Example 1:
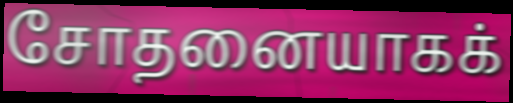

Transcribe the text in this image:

சோதனையாகக்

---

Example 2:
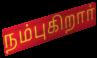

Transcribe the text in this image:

நம்புகிறார்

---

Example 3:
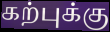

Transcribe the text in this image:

கற்புக்கு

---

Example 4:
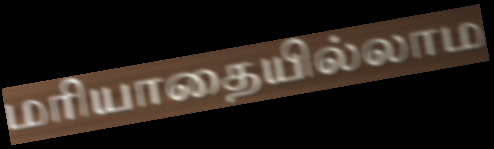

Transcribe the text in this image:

மரியாதையில்லாம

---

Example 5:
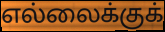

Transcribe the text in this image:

எல்லைக்குக்